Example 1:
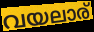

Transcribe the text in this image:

വയലാര്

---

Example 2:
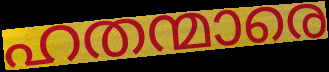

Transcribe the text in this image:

ഹതന്മാരെ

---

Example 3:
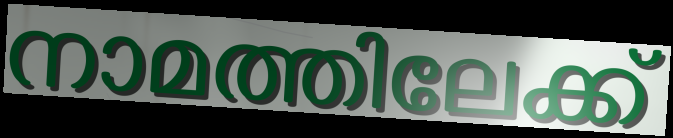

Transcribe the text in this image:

നാമത്തിലേക്ക്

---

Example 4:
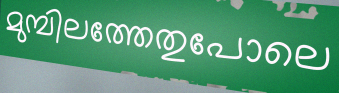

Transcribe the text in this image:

മുമ്പിലത്തേതുപോലെ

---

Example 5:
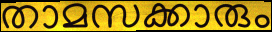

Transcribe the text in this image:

താമസക്കാരും